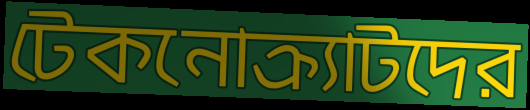
টেকনোক্র্যাটদের